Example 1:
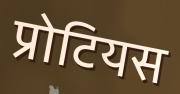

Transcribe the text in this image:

प्रोटियस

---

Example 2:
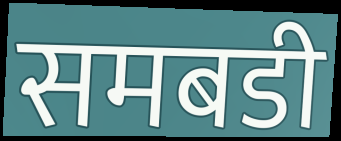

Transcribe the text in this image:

समबडी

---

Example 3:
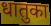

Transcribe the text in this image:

धातुका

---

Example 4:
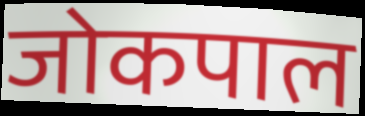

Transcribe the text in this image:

जोकपाल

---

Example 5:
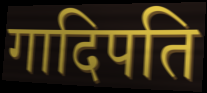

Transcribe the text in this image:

गादिपति